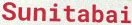
Sunitabai